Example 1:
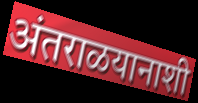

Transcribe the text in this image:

अंतराळयानाशी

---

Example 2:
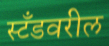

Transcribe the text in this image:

स्टँडवरील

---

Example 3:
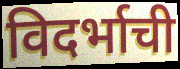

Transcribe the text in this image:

विदर्भाची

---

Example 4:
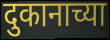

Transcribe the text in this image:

दुकानाच्या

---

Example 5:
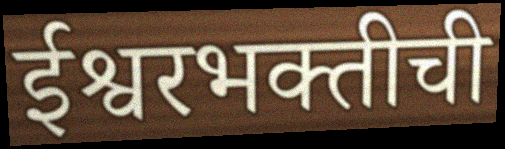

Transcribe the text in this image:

ईश्वरभक्तीची